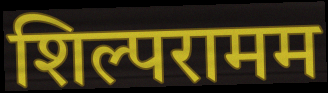
शिल्परामम